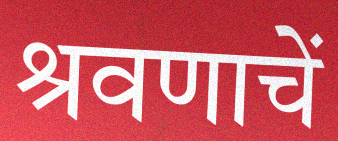
श्रवणाचें